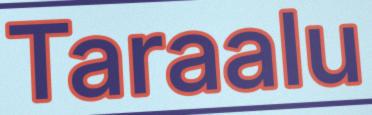
Taraalu